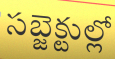
సబ్జెక్టుల్లో